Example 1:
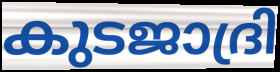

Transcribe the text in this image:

കുടജാദ്രി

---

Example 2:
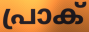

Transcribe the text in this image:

പ്രാക്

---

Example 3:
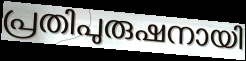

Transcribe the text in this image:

പ്രതിപുരുഷനായി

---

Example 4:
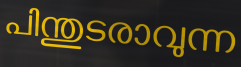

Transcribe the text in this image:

പിന്തുടരാവുന്ന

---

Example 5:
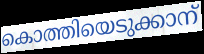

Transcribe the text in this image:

കൊത്തിയെടുക്കാന്